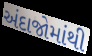
અંદાજોમાંથી